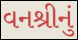
વનશ્રીનું